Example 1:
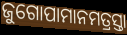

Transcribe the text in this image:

ଜୁଗୋପାମାନମତ୍ରସ୍ତା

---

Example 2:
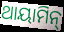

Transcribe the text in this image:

ଥାୟାମିନ୍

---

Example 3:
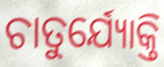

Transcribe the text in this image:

ଚାତୁର୍ଯ୍ୟୋକ୍ତି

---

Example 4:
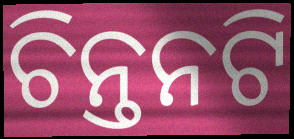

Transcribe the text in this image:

ଚିନ୍ତନଟି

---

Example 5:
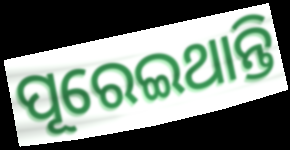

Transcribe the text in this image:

ପୂରେଇଥାନ୍ତି